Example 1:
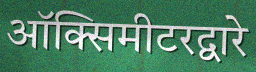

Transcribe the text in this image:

ऑक्सिमीटरद्वारे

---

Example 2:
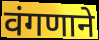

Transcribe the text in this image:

वंगणाने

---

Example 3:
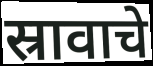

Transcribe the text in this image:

स्रावाचे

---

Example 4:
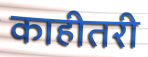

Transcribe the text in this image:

काहीतरी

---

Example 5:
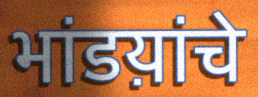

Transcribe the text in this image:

भांडय़ांचे